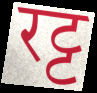
रट्ट